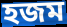
হজম